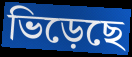
ভিড়েছে